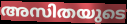
അസിതയുടെ